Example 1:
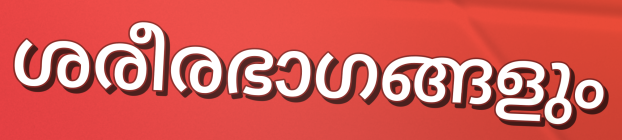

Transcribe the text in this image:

ശരീരഭാഗങ്ങളും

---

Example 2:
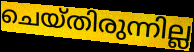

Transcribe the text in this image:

ചെയ്തിരുന്നില്ല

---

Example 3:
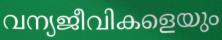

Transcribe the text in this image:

വന്യജീവികളെയും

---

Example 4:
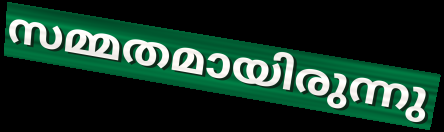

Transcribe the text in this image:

സമ്മതമായിരുന്നു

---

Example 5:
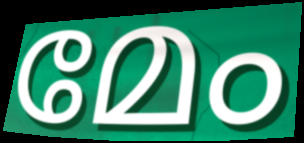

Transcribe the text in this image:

മേം